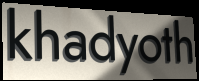
khadyoth